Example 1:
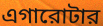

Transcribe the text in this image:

এগারোটার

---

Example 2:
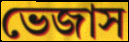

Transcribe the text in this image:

ভেজাস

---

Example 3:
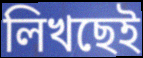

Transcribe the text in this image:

লিখছেই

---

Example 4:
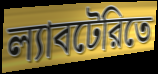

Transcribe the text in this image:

ল্যাবটেরিতে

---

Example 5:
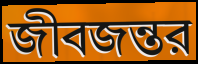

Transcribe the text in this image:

জীবজন্তর